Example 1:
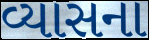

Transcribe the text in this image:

વ્યાસના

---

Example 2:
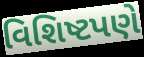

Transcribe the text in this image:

વિશિષ્ટપણે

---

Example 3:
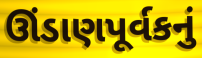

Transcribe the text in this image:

ઊંડાણપૂર્વકનું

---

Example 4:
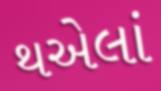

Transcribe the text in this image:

થએલાં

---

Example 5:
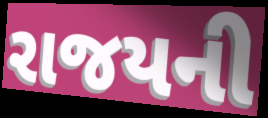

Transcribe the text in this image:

રાજયની